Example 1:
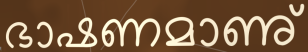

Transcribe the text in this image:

ഭാഷണമാണു്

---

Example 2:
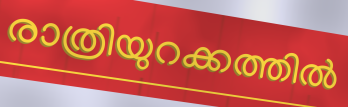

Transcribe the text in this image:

രാത്രിയുറക്കത്തിൽ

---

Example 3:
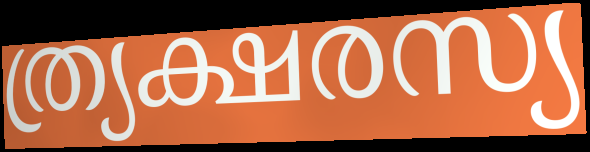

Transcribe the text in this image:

ത്ര്യക്ഷരസ്യ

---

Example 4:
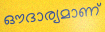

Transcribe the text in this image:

ഔദാര്യമാണ്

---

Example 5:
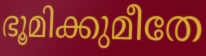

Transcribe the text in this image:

ഭൂമിക്കുമീതേ